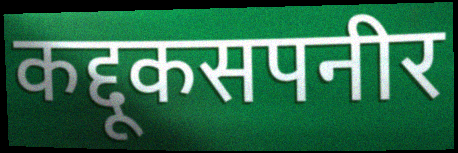
कद्दूकसपनीर